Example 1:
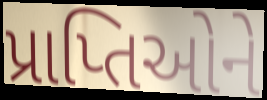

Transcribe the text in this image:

પ્રાપ્તિઓને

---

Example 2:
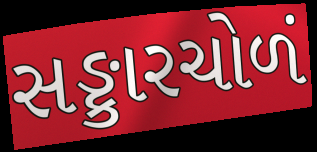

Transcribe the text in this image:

સઙ્કારચોળં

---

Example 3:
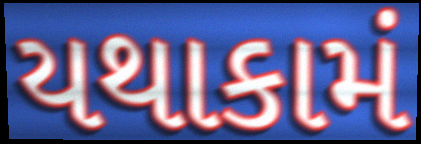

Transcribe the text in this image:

યથાકામં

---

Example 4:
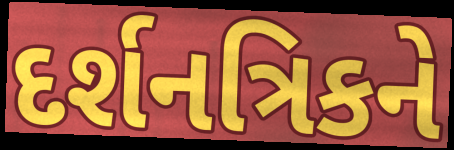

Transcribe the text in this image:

દર્શનત્રિકને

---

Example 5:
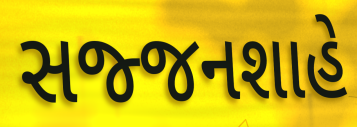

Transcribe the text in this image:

સજ્જનશાહે